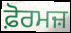
ਫ਼ੋਰਮਜ਼